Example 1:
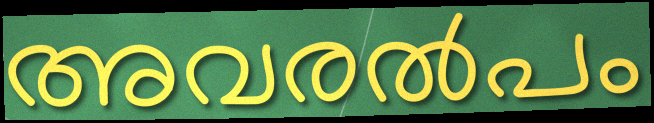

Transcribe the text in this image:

അവരൽപം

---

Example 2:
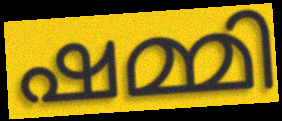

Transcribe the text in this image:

ഷമ്മി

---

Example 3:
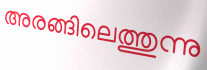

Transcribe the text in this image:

അരങ്ങിലെത്തുന്നു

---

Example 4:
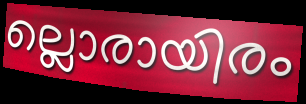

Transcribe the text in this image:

ല്ലൊരായിരം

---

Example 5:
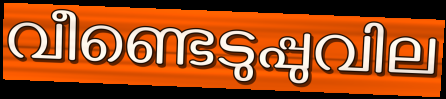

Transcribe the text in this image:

വീണ്ടെടുപ്പുവില